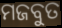
ମଜବୁତ